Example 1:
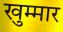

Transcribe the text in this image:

खुम्मार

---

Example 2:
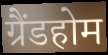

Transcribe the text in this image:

ग्रैंडहोम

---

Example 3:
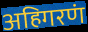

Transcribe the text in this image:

अहिगरणं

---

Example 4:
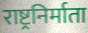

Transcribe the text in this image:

राष्ट्रनिर्माता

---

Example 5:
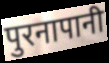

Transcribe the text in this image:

पुरनापानी